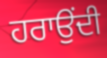
ਹਰਾਉਂਦੀ